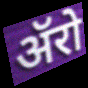
ॲरो